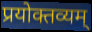
प्रयोक्तव्यम्